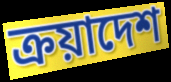
ক্রয়াদেশ